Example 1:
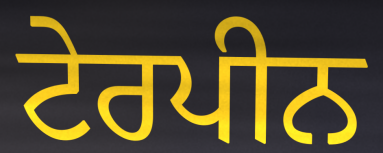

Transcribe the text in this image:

ਟੇਰਪੀਨ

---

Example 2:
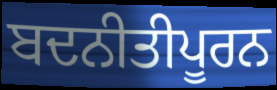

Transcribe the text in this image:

ਬਦਨੀਤੀਪੂਰਨ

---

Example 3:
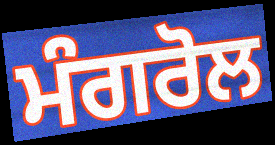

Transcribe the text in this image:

ਮੰਗਰੋਲ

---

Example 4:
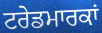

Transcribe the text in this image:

ਟਰੇਡਮਾਰਕਾਂ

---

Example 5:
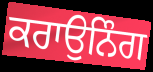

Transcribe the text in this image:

ਕਰਾਉਨਿੰਗ